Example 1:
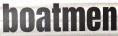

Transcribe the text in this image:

boatmen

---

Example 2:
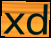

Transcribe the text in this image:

xd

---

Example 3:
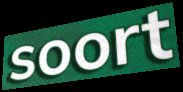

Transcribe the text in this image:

soort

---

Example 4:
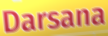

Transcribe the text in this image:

Darsana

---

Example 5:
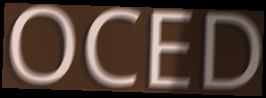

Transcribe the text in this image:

OCED